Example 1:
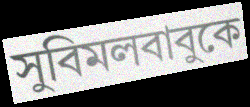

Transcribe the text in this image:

সুবিমলবাবুকে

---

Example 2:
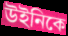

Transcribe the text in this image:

উইনিকে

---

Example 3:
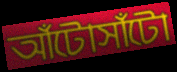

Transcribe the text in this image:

আঁটোসাঁটো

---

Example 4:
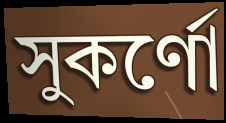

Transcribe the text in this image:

সুকর্ণো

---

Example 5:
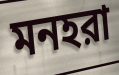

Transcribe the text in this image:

মনহরা